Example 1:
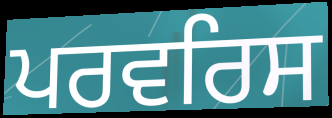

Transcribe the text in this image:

ਪਰਵਰਿਸ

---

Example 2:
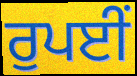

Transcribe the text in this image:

ਰੁਪਈਂ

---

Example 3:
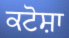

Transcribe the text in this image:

ਕਟੋਸ਼ਾ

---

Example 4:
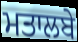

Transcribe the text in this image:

ਮਤਾਲਬੇ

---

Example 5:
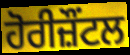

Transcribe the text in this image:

ਹੋਰੀਜ਼ੌਂਟਲ